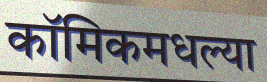
कॉमिकमधल्या